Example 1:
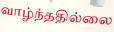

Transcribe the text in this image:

வாழ்ந்ததில்லை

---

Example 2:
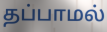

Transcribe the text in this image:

தப்பாமல்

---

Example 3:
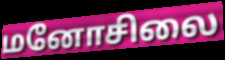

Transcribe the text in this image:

மனோசிலை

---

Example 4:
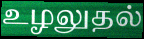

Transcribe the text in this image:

உழலுதல்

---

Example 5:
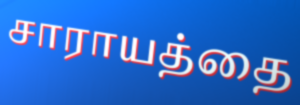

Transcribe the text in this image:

சாராயத்தை